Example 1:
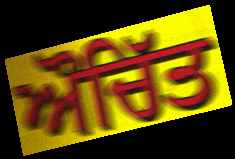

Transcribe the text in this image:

ਔਚਿੱਤ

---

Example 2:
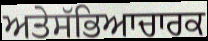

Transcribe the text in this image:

ਅਤੇਸੱਭਿਆਚਾਰਕ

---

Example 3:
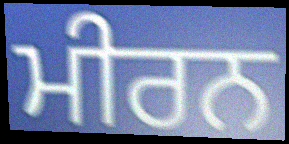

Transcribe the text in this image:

ਮੀਰਨ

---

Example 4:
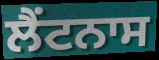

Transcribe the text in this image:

ਲੈਂਟਨਾਸ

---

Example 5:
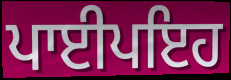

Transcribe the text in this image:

ਪਾਈਪਇਹ